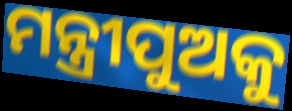
ମନ୍ତ୍ରୀପୁଅକୁ